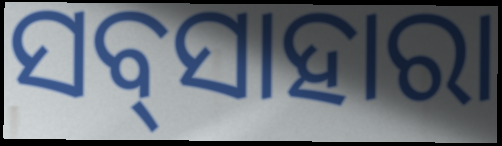
ସବ୍‌ସାହାରା